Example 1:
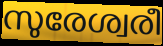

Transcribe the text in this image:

സുരേശ്വരീ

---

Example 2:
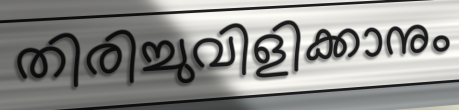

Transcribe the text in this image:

തിരിച്ചുവിളിക്കാനും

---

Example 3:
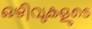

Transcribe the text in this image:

ഒഴിവുകളുടെ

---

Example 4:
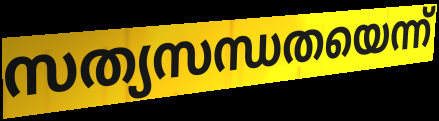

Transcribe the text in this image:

സത്യസന്ധതയെന്ന്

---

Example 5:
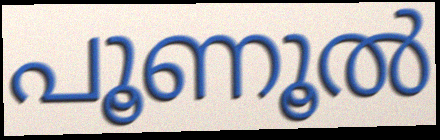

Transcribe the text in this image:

പൂണൂൽ